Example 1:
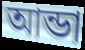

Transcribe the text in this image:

আন্ডা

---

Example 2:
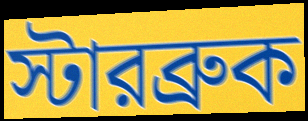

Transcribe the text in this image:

স্টারব্রুক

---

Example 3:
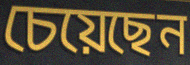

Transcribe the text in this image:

চেয়েছেন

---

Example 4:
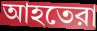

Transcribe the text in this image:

আহতেরা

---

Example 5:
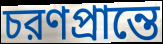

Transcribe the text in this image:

চরণপ্রান্তে